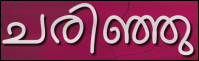
ചരിഞ്ഞു